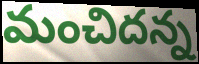
మంచిదన్న